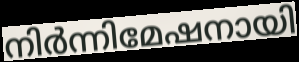
നിർന്നിമേഷനായി